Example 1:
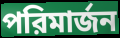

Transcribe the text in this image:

পরিমার্জন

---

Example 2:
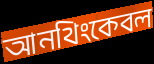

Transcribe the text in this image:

আনথিংকেবল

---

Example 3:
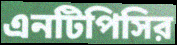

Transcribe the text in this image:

এনটিপিসির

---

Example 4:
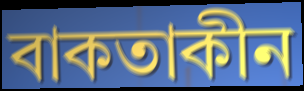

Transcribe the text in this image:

বাকতাকীন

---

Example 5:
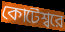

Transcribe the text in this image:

কোটেশ্বরে